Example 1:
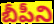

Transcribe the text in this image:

బీపీని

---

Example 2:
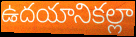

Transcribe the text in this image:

ఉదయానికల్లా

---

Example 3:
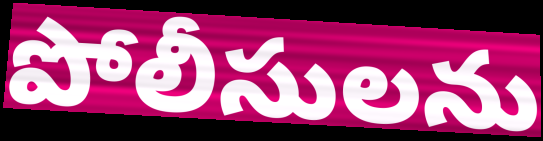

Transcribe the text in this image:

పోలీసులను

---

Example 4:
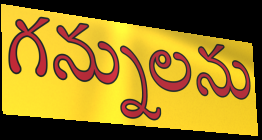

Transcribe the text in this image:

గన్నులను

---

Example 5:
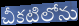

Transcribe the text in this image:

చీకటిలోను